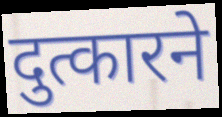
दुत्कारने